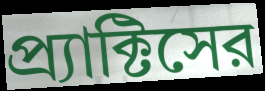
প্র্যাক্টিসের